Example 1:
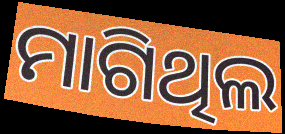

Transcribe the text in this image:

ମାଗିଥିଲ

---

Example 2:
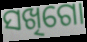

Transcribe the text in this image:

ସଖିଗୋ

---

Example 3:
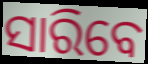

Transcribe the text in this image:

ସାରିବେ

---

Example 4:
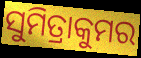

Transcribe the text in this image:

ସୁମିତ୍ରାକୁମର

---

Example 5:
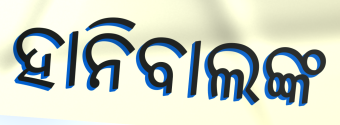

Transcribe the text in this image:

ହାନିବାଲଙ୍କ